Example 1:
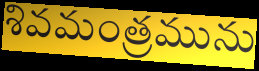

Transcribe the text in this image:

శివమంత్రమును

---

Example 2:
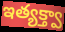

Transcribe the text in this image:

ఇత్యక్త్వా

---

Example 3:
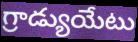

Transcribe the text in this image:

గ్రాడ్యుయేటు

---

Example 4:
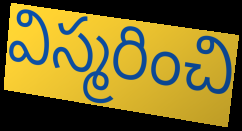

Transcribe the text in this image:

విస్మరించి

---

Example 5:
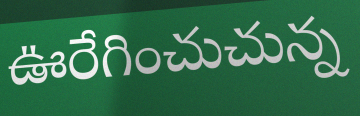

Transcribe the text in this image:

ఊరేగించుచున్న